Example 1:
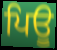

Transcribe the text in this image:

ਪਿਊ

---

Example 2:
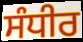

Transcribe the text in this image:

ਸੰਧੀਰ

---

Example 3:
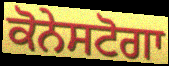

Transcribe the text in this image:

ਕੋਨੇਸਟੋਗਾ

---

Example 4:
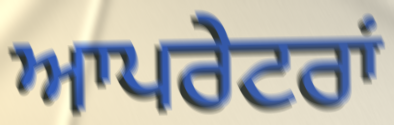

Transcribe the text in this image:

ਆਪਰੇਟਰਾਂ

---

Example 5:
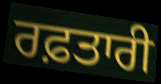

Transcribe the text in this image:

ਰਫ਼ਤਾਰੀ